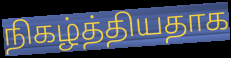
நிகழ்த்தியதாக